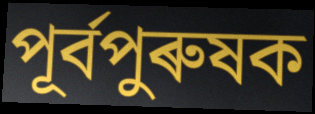
পূৰ্বপুৰুষক